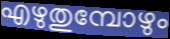
എഴുതുമ്പോഴും